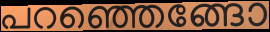
പറഞ്ഞെങ്ങോ